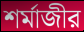
শর্মাজীর